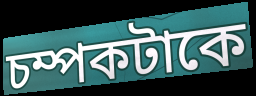
চম্পকটাকে